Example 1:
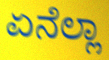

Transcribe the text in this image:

ಏನೆಲ್ಲಾ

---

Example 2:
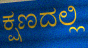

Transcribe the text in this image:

ಕ್ಷಣದಲ್ಲಿ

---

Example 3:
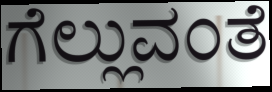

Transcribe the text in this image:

ಗೆಲ್ಲುವಂತೆ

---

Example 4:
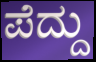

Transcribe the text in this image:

ಪೆದ್ದು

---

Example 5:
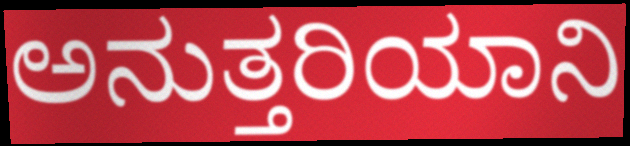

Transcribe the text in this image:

ಅನುತ್ತರಿಯಾನಿ